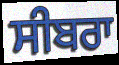
ਸੀਬਰਾ